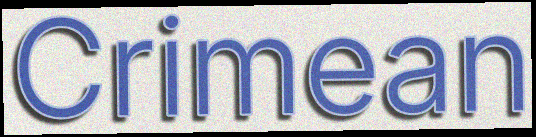
Crimean